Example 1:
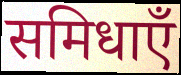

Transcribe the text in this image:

समिधाएँ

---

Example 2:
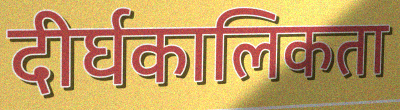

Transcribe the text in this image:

दीर्घकालिकता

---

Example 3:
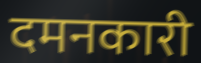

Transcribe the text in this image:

दमनकारी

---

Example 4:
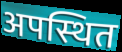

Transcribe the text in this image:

अपस्थित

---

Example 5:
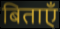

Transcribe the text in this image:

बिताएँ